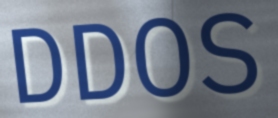
DDOS